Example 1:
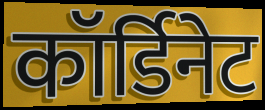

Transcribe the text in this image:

कॉर्डिनेट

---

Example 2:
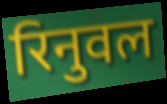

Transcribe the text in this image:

रिनुवल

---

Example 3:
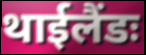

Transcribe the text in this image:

थाईलैंडः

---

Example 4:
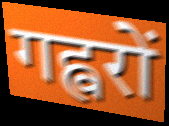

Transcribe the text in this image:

गह्वरों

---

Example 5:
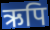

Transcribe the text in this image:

ऋपि